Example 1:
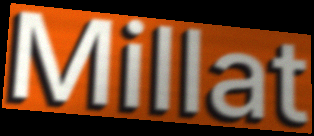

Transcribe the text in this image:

Millat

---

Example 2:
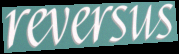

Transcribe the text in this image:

reversus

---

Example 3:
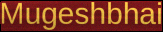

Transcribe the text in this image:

Mugeshbhai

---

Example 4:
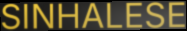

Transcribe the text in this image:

SINHALESE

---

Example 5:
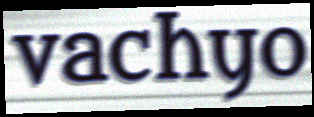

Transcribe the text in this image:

vachyo